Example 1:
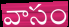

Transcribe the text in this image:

వాసం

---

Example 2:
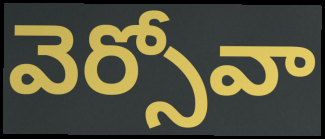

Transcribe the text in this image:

వెర్సోవా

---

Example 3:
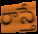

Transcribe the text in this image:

రాస్తే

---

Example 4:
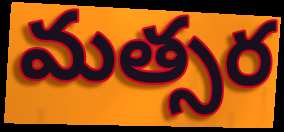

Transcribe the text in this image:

మత్సర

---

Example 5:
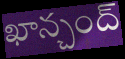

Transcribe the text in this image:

ఖాన్చంద్